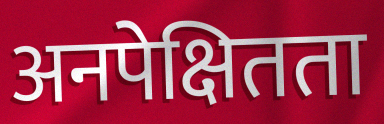
अनपेक्षितता